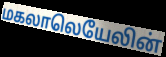
மகலாலெயேலின்